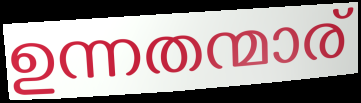
ഉന്നതന്മാര്